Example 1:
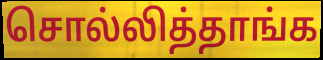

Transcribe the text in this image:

சொல்லித்தாங்க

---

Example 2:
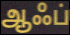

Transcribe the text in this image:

ஆஃப்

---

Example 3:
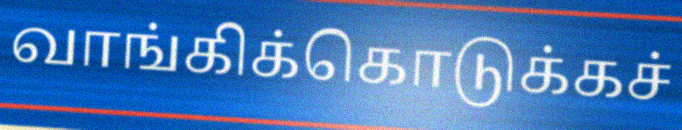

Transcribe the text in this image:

வாங்கிக்கொடுக்கச்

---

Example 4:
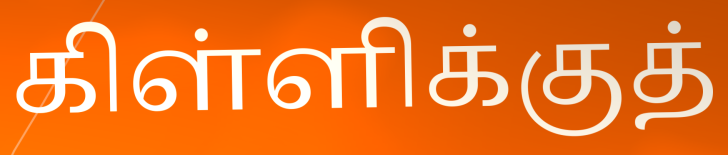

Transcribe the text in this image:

கிள்ளிக்குத்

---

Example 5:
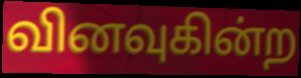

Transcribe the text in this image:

வினவுகின்ற